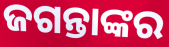
ଜଗନ୍ତାଙ୍କର